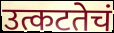
उत्कटतेचं